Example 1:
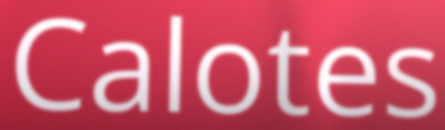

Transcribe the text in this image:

Calotes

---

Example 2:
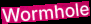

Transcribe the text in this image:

Wormhole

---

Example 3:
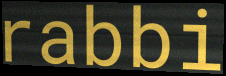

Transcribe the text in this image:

rabbi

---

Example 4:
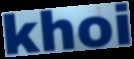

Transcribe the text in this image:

khoi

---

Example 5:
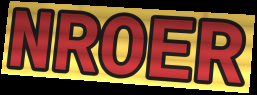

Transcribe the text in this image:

NROER